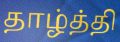
தாழ்த்தி